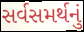
સર્વસમર્થનું